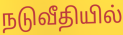
நடுவீதியில்